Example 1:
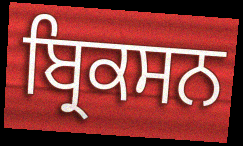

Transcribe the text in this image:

ਬ੍ਰਿਕਸਨ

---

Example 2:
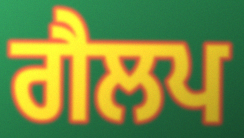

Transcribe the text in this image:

ਗੈਲਪ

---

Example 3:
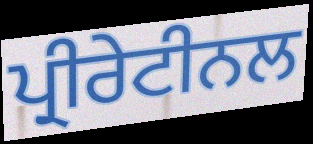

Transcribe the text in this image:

ਪ੍ਰੀਰੇਟੀਨਲ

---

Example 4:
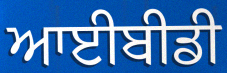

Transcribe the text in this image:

ਆਈਬੀਡੀ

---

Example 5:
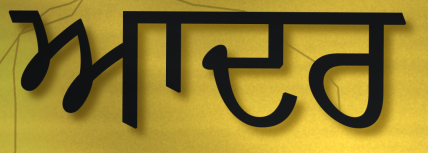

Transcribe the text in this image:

ਆਦਰ